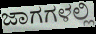
ಜಾಗಗಳಲ್ಲಿ